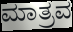
ಮಾತ್ರವ